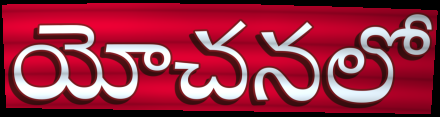
యోచనలో